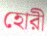
হোরী